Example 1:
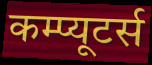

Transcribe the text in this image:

कम्प्यूटर्स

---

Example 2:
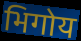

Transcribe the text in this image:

भिगोय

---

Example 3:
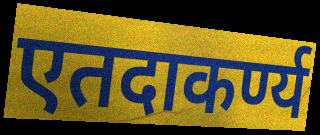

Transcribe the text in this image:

एतदाकर्ण्य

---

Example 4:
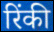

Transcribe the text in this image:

रिंकी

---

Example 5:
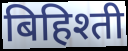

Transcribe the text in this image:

बिहिश्ती